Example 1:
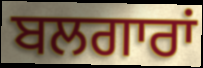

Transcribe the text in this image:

ਬਲਗਾਰਾਂ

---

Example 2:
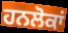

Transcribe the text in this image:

ਹਨਲੋਕਾਂ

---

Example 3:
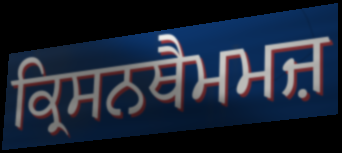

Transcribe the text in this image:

ਕ੍ਰਿਸਨਥੈਮਮਜ਼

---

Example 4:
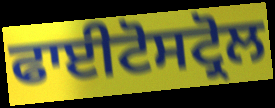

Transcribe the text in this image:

ਫਾਈਟੋਸਟ੍ਰੋਲ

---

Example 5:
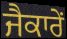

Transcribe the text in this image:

ਜੈਕਾਰੇਂ